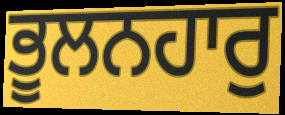
ਭੂਲਨਹਾਰੁ